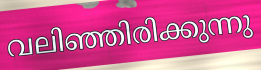
വലിഞ്ഞിരിക്കുന്നു